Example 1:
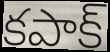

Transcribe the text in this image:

కపాక్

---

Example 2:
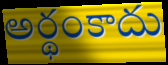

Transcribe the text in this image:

అర్థంకాదు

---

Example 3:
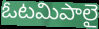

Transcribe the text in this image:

ఓటమిపాలై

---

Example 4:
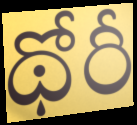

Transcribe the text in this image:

థోరీ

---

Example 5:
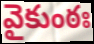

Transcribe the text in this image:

వైకుంఠః